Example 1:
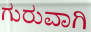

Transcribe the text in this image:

ಗುರುವಾಗಿ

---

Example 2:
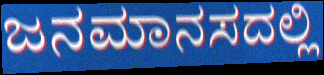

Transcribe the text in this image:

ಜನಮಾನಸದಲ್ಲಿ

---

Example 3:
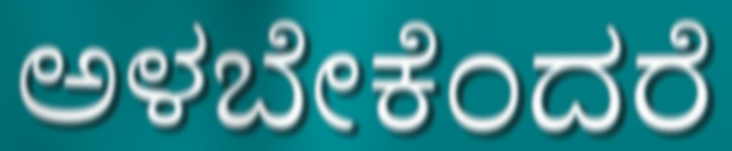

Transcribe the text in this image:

ಅಳಬೇಕೆಂದರೆ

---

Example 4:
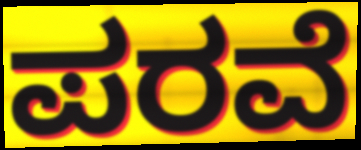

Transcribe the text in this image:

ಪರವೆ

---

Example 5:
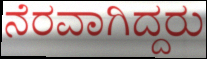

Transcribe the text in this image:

ನೆರವಾಗಿದ್ದರು